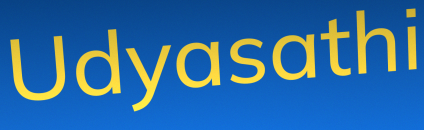
Udyasathi